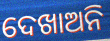
ଦେଖାଅନି